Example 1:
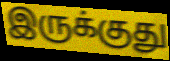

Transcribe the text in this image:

இருக்குது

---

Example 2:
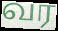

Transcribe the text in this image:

வர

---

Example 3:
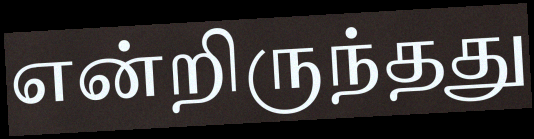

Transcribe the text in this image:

என்றிருந்தது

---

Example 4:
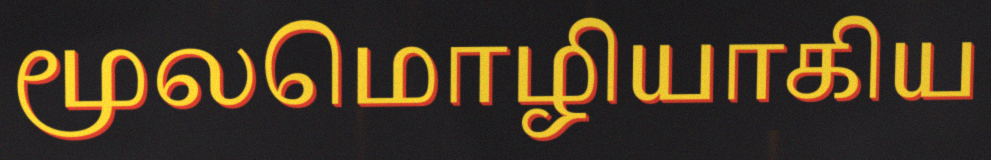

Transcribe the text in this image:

மூலமொழியாகிய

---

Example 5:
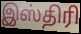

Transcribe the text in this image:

இஸ்திரி